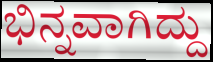
ಭಿನ್ನವಾಗಿದ್ದು